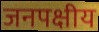
जनपक्षीय